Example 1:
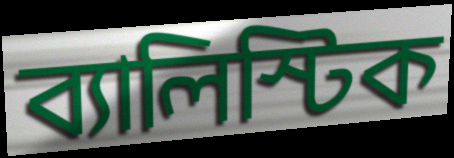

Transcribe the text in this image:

ব্যালিস্টিক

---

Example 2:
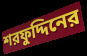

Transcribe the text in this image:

শরফুদ্দিনের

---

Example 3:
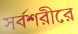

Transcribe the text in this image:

সর্বশরীরে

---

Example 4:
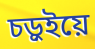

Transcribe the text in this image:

চড়ুইয়ে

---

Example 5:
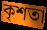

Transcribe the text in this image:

কৃশতা